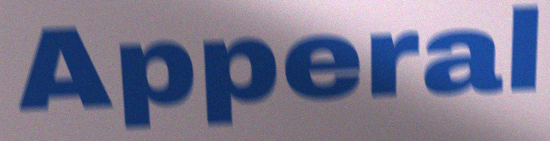
Apperal